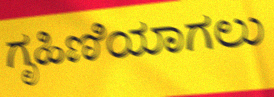
ಗೃಹಿಣಿಯಾಗಲು